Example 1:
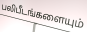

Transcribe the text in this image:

பலிபீடங்களையும்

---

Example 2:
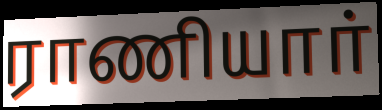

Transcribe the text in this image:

ராணியார்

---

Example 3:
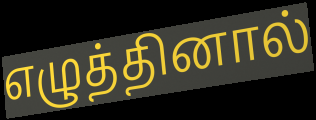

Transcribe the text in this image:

எழுத்தினால்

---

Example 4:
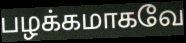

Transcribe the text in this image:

பழக்கமாகவே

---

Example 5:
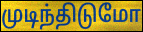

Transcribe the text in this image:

முடிந்திடுமோ